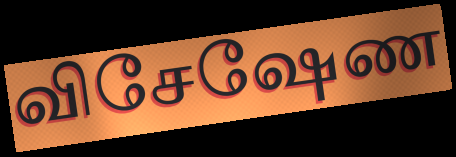
விசேஷேண